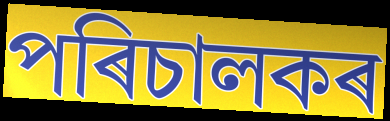
পৰিচালকৰ